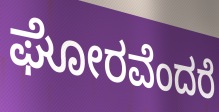
ಘೋರವೆಂದರೆ